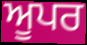
ਅੂਪਰ